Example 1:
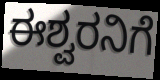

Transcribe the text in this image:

ಈಶ್ವರನಿಗೆ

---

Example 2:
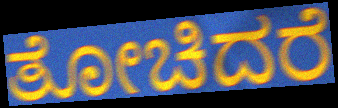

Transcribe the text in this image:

ತೋಚಿದರೆ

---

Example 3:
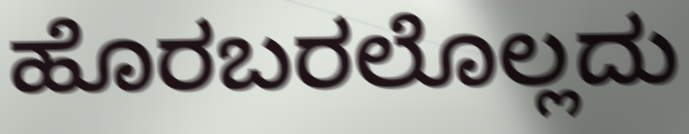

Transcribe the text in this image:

ಹೊರಬರಲೊಲ್ಲದು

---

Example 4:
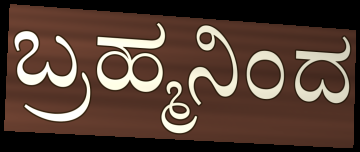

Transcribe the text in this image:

ಬ್ರಹ್ಮನಿಂದ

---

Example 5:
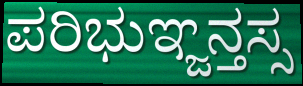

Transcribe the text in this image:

ಪರಿಭುಞ್ಜನ್ತಸ್ಸ